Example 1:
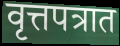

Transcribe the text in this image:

वृत्तपत्रात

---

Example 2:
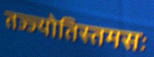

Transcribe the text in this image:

तज्ज्योतिस्तमसः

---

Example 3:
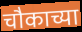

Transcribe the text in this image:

चौकाच्या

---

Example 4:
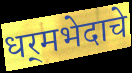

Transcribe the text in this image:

धर्मभेदाचे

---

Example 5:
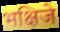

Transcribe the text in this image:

भक्षिजे